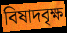
বিষাদবৃক্ষ